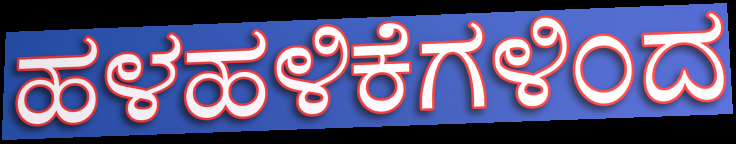
ಹಳಹಳಿಕೆಗಳಿಂದ